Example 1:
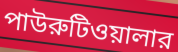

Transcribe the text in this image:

পাউরুটিওয়ালার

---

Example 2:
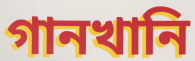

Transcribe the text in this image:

গানখানি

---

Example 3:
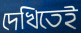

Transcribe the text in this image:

দেখিতেই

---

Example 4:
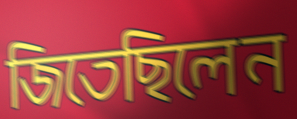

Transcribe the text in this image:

জিতেছিলেন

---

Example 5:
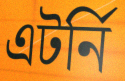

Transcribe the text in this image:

এটর্নি